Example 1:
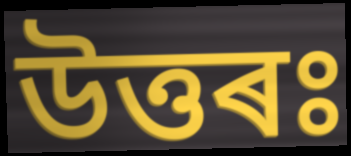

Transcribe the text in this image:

উত্তৰঃ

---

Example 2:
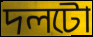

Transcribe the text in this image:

দলটো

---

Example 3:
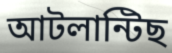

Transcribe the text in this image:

আটলান্টিছ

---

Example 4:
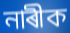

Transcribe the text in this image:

নাৰীক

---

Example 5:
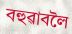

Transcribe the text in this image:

বহুৱাবলৈ